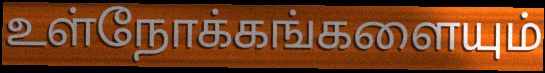
உள்நோக்கங்களையும்